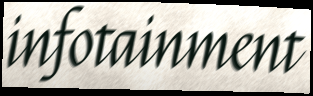
infotainment